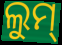
ଲୁମ୍